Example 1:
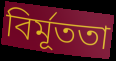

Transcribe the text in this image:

বির্মূততা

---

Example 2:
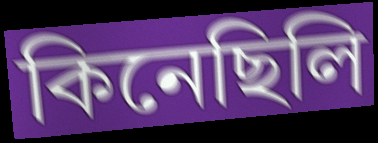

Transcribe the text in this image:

কিনেছিলি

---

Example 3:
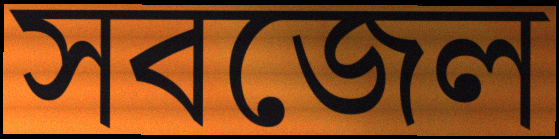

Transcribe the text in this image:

সবজেল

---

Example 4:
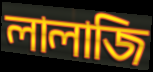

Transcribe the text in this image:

লালাজি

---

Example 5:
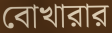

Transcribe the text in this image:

বোখারার